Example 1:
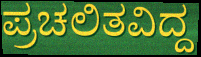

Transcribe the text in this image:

ಪ್ರಚಲಿತವಿದ್ದ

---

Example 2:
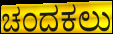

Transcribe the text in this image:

ಚಂದಕಲು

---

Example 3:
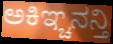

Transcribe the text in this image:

ಅಕಿಞ್ಚನನ್ತಿ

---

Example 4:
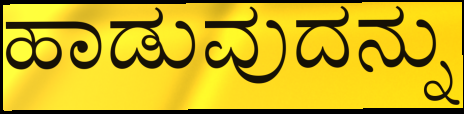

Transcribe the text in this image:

ಹಾಡುವುದನ್ನು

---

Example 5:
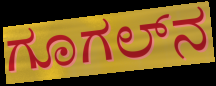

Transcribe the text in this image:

ಗೂಗಲ್‌ನ